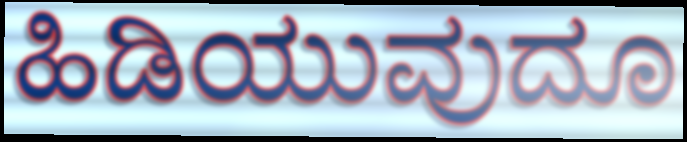
ಹಿಡಿಯುವುದೂ